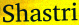
Shastri